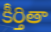
కీర్తితా